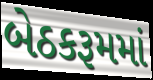
બેઠકરૂમમાં